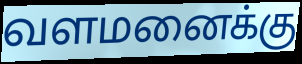
வளமனைக்கு